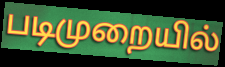
படிமுறையில்